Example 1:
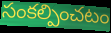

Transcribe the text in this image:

సంకల్పించటం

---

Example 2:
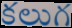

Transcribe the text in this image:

కలుగ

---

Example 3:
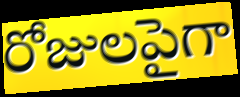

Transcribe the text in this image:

రోజులపైగా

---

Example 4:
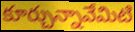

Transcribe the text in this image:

కూర్చున్నావేమిటి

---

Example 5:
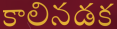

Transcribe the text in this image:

కాలినడక